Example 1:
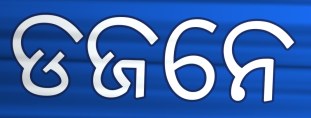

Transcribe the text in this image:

ଡଜନେ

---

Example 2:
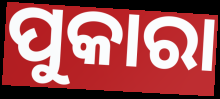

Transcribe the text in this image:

ପୁକାରା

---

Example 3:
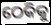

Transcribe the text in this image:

ଠେକିକୁ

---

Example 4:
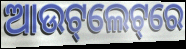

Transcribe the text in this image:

ଆଉଟ୍‌ଲେଟ୍‌ରେ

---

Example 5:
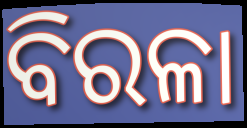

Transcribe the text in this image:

ବିରଳା